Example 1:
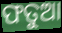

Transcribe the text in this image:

ଫତୁଆ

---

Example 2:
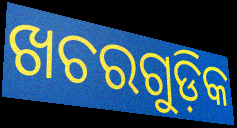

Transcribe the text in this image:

ଖଚରଗୁଡ଼ିକ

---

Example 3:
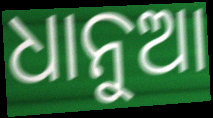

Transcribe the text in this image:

ଧାନୁଆ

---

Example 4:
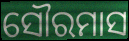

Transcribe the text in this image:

ସୌରମାସ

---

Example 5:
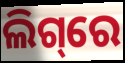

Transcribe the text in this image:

ଲିଗ୍‌ରେ